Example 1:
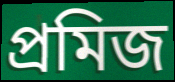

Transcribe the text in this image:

প্রমিজ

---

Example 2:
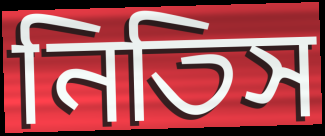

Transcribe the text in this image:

নিতিস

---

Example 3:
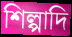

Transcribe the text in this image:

শিল্পাদি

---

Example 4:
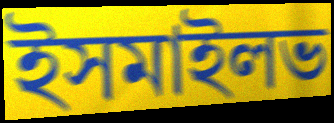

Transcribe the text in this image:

ইসমাইলভ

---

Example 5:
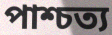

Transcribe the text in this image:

পাশ্চত্য